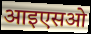
आइएसओ